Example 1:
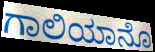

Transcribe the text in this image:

ಗಾಲಿಯಾನೊ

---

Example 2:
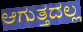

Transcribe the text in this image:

ಆಗುತ್ತದಲ್ಲ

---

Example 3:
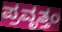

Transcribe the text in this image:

ಪ್ರವೃತ್ತಂ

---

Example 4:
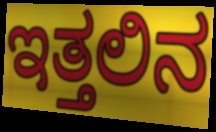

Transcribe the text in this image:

ಇತ್ತಲಿನ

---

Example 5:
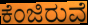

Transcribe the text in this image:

ಕೆಂಜಿರುವೆ